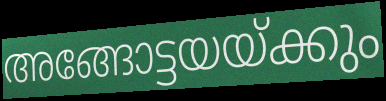
അങ്ങോട്ടയയ്ക്കും